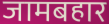
जामबहार